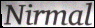
Nirmal